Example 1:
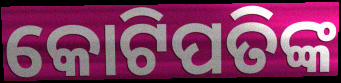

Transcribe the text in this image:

କୋଟିପତିଙ୍କ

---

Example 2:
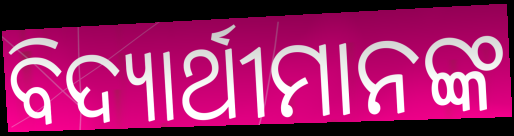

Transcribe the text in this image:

ବିଦ୍ୟାର୍ଥୀମାନଙ୍କ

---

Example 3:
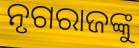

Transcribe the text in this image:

ନୃଗରାଜଙ୍କୁ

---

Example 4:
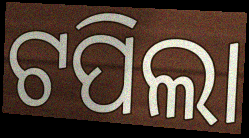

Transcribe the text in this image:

ଟପିଲା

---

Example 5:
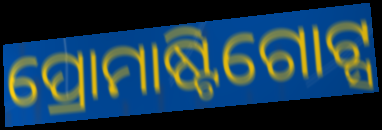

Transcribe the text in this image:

ପ୍ରୋମାଷ୍ଟିଗୋଟ୍ସ